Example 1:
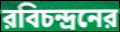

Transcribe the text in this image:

রবিচন্দ্রনের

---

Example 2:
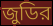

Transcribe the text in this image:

জুডির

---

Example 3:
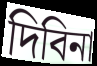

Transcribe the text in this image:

দিবিনা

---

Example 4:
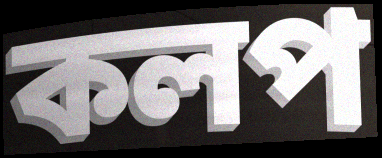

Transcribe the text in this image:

কলপ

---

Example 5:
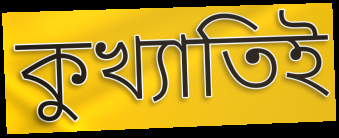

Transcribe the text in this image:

কুখ্যাতিই